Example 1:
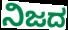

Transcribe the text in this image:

ನಿಜದ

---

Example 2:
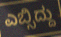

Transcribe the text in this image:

ಎಬ್ಸಿದ್ದು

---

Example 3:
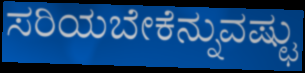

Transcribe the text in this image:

ಸರಿಯಬೇಕೆನ್ನುವಷ್ಟು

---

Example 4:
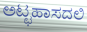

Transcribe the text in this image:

ಅಟ್ಟಹಾಸದಲಿ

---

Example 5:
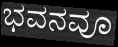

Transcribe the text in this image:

ಭವನವೂ